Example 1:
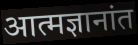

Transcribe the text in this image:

आत्मज्ञानांत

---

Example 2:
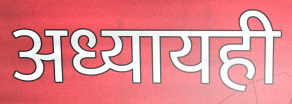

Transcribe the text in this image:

अध्यायही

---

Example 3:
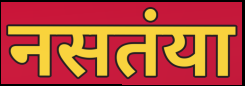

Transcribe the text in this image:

नसतंया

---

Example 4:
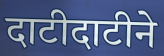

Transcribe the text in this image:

दाटीदाटीने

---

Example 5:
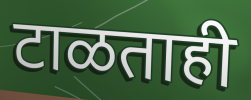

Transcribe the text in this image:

टाळताही